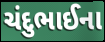
ચંદુભાઈના